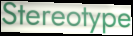
Stereotype